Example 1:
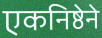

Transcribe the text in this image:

एकनिष्ठेने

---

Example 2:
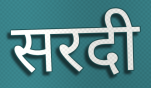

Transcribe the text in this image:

सरदी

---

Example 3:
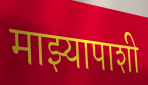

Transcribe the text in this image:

माझ्यापाशी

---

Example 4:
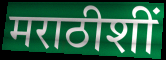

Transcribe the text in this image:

मराठीशीं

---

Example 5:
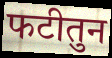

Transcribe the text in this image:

फटीतुन